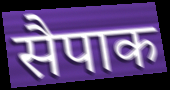
सैपाक